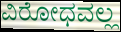
ವಿರೋಧವಲ್ಲ